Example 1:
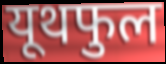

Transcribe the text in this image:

यूथफुल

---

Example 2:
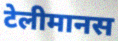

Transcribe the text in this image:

टेलीमानस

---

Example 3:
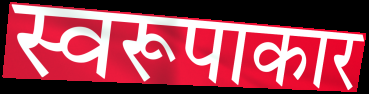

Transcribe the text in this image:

स्वरूपाकार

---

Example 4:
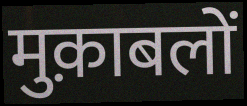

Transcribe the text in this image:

मुक़ाबलों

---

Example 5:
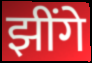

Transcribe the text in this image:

झींगे